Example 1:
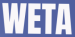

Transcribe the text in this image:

WETA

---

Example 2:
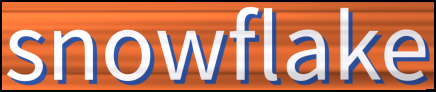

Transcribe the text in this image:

snowflake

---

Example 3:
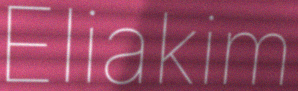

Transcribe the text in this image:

Eliakim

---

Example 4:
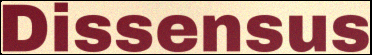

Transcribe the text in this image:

Dissensus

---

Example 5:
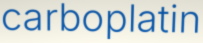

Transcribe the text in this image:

carboplatin